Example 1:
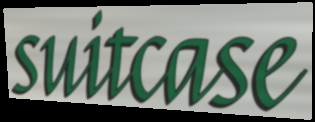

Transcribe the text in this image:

suitcase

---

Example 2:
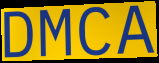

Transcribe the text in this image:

DMCA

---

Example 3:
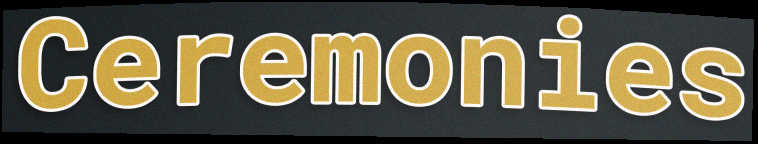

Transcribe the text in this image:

Ceremonies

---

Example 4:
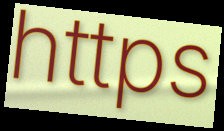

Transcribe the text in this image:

https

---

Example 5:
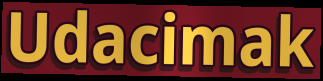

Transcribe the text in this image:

Udacimak